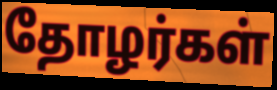
தோழர்கள்